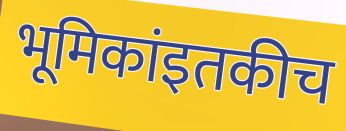
भूमिकांइतकीच